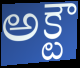
అక్టౌ